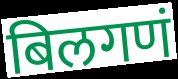
बिलगणं